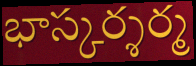
భాస్కర్శర్మ